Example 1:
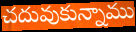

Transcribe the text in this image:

చదువుకున్నాము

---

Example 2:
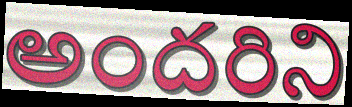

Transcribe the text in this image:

అందరిని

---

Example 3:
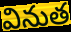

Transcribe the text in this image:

వినుత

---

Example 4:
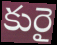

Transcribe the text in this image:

కురై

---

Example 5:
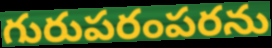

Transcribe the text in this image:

గురుపరంపరను